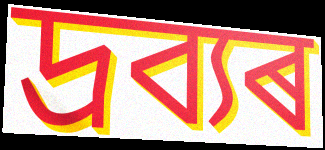
দ্ৰব্যৰ